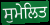
ਸੁਮੇਲਿਤ